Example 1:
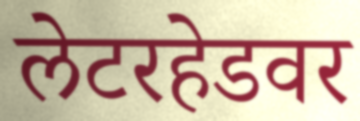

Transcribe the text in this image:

लेटरहेडवर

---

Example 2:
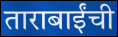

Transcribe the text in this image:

ताराबाईंची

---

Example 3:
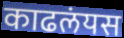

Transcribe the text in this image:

काढलंयस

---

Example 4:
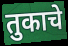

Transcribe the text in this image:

तुकाचे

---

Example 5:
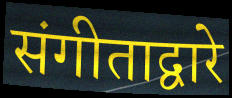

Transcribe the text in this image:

संगीताद्वारे